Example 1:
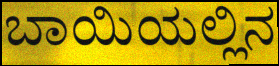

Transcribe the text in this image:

ಬಾಯಿಯಲ್ಲಿನ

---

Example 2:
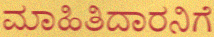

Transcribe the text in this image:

ಮಾಹಿತಿದಾರನಿಗೆ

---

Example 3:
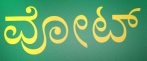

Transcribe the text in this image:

ವೋಟ್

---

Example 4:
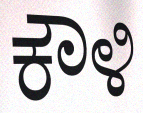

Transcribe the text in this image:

ಕೌಳಿ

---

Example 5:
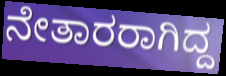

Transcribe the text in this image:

ನೇತಾರರಾಗಿದ್ದ